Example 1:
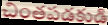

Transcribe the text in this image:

చింతపడకుడి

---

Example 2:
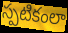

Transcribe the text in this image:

స్పటికంలా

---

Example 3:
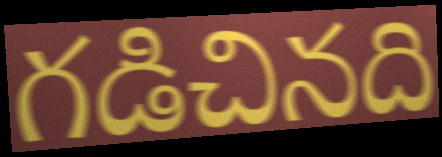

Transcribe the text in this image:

గడిచినది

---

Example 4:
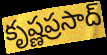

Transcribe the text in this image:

కృష్ణప్రసాద్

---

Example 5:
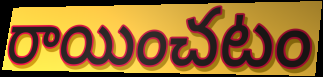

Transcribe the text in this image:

రాయించటం